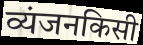
व्यंजनकिसी